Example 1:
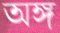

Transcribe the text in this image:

অঙ্গ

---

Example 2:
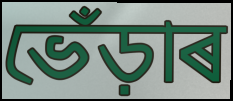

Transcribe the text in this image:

ভেঁড়াৰ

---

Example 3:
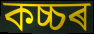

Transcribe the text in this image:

কচ্চৰ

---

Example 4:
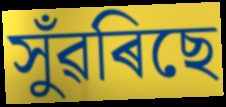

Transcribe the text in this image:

সুঁৱৰিছে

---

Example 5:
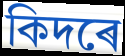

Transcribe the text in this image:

কিদৰে